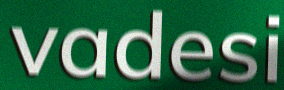
vadesi